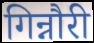
गिन्नौरी